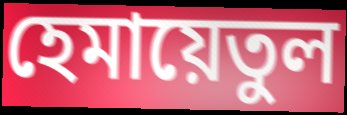
হেমায়েতুল